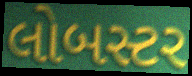
લોબસ્ટર